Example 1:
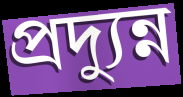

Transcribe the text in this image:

প্রদ্যুন্ন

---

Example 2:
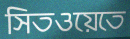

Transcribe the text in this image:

সিতওয়েতে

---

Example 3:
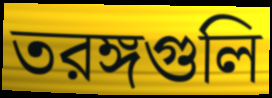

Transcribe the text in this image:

তরঙ্গগুলি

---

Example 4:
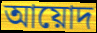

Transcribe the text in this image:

আয়োদ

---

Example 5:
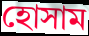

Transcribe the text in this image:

হোসাম